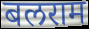
बलराम